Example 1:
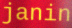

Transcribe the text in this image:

janin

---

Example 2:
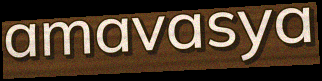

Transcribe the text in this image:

amavasya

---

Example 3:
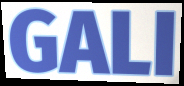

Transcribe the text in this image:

GALI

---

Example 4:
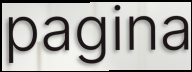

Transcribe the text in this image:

pagina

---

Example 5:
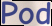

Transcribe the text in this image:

Pod